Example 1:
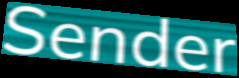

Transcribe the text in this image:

Sender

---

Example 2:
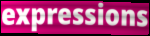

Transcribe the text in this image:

expressions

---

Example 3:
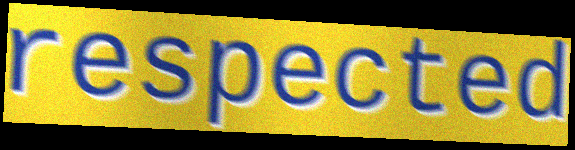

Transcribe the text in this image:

respected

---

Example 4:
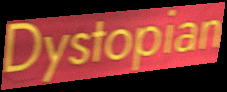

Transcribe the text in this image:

Dystopian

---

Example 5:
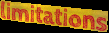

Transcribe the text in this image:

limitations